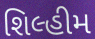
શિલ્હીમ